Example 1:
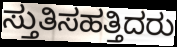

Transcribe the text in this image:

ಸ್ತುತಿಸಹತ್ತಿದರು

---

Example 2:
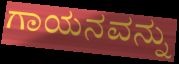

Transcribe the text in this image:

ಗಾಯನವನ್ನು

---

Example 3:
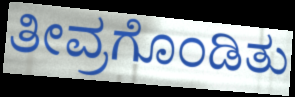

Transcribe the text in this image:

ತೀವ್ರಗೊಂಡಿತು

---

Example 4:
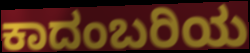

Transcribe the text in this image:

ಕಾದಂಬರಿಯ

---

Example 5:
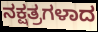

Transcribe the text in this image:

ನಕ್ಷತ್ರಗಳಾದ